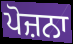
ਪੋਜ਼ਨਾ